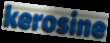
kerosine